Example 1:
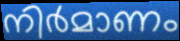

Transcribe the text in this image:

നിർമാണം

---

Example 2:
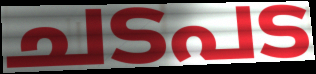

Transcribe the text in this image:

ചടപട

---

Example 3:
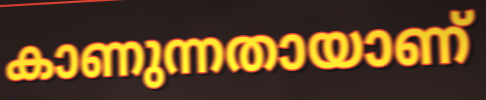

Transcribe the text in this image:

കാണുന്നതായാണ്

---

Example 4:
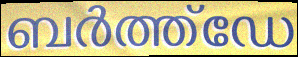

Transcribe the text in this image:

ബർത്ത്ഡേ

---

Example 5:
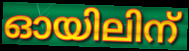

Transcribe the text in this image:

ഓയിലിന്